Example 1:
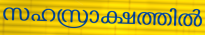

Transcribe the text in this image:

സഹസ്രാക്ഷത്തിൽ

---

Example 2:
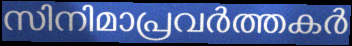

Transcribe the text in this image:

സിനിമാപ്രവർത്തകർ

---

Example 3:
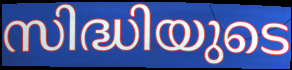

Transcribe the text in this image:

സിദ്ധിയുടെ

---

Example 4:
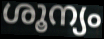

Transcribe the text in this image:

ശൂന്യം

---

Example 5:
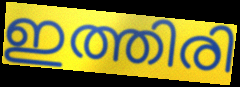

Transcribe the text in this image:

ഇത്തിരി